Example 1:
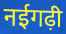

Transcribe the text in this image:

नईगढ़ी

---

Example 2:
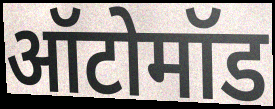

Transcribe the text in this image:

ऑटोमॉड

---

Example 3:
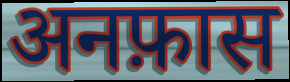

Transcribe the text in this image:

अनफ़ास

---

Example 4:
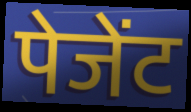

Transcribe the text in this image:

पेजेंट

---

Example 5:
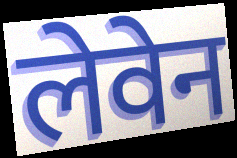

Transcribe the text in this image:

लेवेन